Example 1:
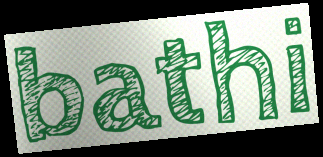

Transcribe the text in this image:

bathi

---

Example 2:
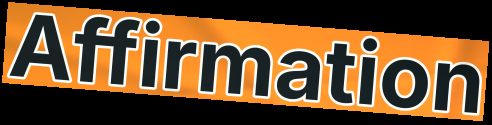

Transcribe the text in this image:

Affirmation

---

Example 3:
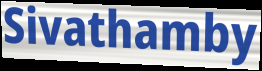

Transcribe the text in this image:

Sivathamby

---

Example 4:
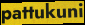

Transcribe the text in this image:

pattukuni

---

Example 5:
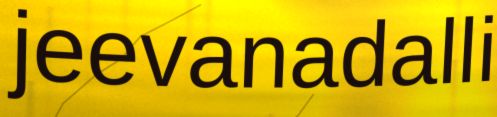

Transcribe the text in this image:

jeevanadalli